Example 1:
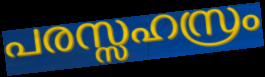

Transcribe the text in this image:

പരസ്സഹസ്രം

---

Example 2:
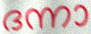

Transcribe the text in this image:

ദന്നാ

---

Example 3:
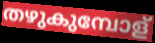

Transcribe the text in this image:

തഴുകുമ്പോള്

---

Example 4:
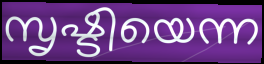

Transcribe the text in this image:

സൃഷ്ടിയെന്ന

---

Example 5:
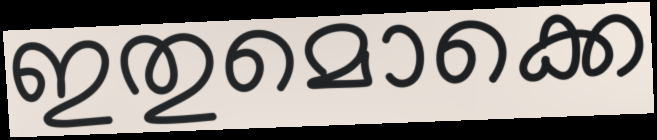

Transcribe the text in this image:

ഇതുമൊക്കെ